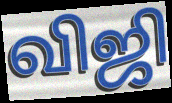
விஜி